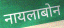
नायलाबोन